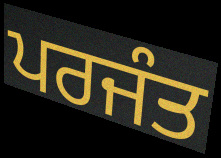
ਪਰਜੰਤ